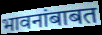
भावनांबाबत